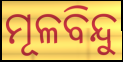
ମୂଳବିନ୍ଦୁ